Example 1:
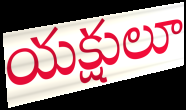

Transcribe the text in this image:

యక్షులూ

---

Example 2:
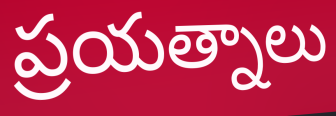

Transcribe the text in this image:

ప్రయత్నాలు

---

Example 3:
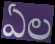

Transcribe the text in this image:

ఏల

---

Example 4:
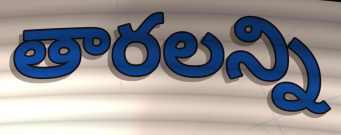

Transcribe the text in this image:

తారలన్ని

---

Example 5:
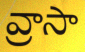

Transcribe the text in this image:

వ్రాసా